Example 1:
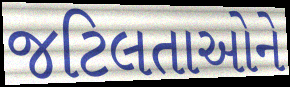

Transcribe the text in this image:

જટિલતાઓને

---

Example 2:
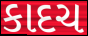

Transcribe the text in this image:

કાદચ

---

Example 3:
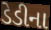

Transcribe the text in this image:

ડેડીના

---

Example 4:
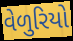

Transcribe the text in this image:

વેળુરિયો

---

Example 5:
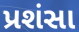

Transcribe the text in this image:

પ્રશંસા